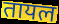
तायल